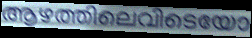
ആഴത്തിലെവിടെയോ